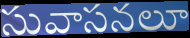
సువాసనలూ